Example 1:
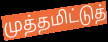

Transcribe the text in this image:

முத்தமிட்டுத்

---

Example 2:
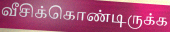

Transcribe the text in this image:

வீசிக்கொண்டிருக்க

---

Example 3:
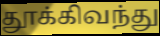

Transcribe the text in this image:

தூக்கிவந்து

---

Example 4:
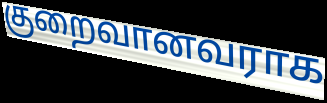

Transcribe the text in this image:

குறைவானவராக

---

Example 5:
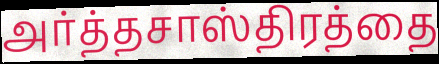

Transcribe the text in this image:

அர்த்தசாஸ்திரத்தை